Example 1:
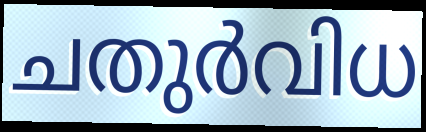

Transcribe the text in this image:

ചതുർവിധ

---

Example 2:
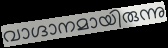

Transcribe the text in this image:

വാഗ്ദാനമായിരുന്നു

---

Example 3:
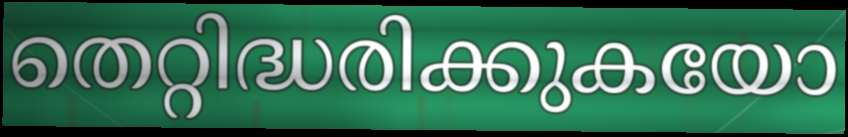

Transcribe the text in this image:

തെറ്റിദ്ധരിക്കുകയോ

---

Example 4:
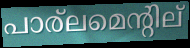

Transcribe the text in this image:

പാര്ലമെന്റില്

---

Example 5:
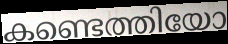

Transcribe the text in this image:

കണ്ടെത്തിയോ